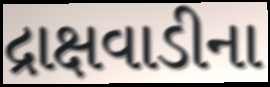
દ્રાક્ષવાડીના